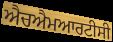
ਐਚਐਮਆਰਟੀਸੀ